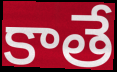
కాతే